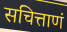
सचित्ताणं